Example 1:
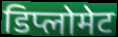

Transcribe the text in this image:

डिप्लोमेट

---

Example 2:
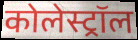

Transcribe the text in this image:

कोलेस्ट्रॉल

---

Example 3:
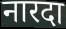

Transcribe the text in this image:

नारदा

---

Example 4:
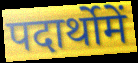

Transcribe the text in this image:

पदार्थोमें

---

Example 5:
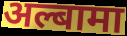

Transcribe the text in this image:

अल्बामा